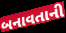
બનાવતાની